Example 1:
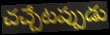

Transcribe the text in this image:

చచ్చేటప్పుడు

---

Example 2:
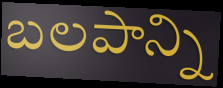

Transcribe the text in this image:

బలపాన్ని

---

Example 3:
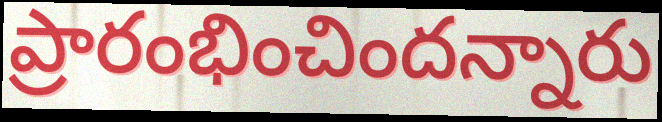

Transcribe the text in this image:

ప్రారంభించిందన్నారు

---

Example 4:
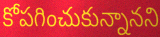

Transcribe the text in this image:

కోపగించుకున్నానని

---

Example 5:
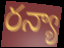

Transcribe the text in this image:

రన్యా